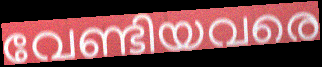
വേണ്ടിയവരെ